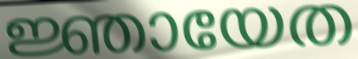
ജ്ഞായേത